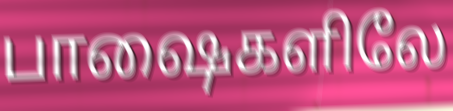
பாஷைகளிலே